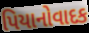
પિયાનોવાદક